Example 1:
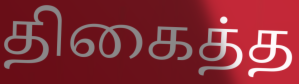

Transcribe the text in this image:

திகைத்த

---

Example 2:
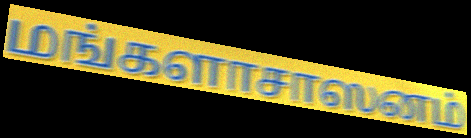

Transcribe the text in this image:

மங்களாசாஸனம்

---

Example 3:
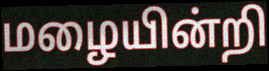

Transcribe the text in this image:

மழையின்றி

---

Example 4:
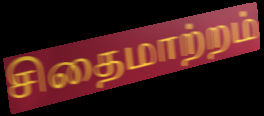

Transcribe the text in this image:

சிதைமாற்றம்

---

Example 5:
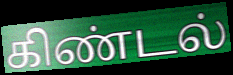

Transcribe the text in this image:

கிண்டல்